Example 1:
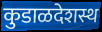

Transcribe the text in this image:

कुडाळदेशस्थ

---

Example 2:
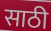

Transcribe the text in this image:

साठी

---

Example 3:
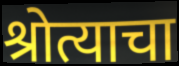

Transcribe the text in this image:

श्रोत्याचा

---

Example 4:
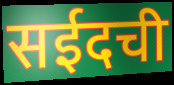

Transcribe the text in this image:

सईदची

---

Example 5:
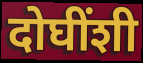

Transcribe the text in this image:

दोघींशी